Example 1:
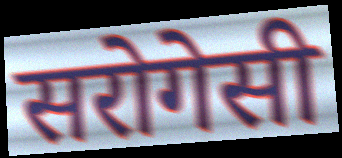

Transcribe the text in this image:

सरोगेसी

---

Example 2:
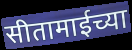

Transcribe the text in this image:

सीतामाईच्या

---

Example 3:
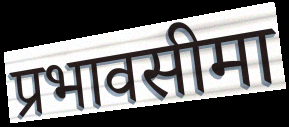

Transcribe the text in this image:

प्रभावसीमा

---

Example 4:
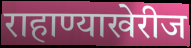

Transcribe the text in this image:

राहाण्याखेरीज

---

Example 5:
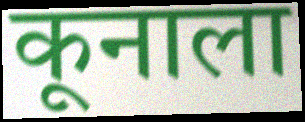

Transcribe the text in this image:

कूनाला